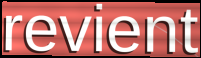
revient